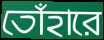
তোঁহারে